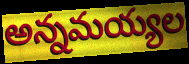
అన్నమయ్యల